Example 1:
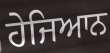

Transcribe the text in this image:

ਹੇਜਿਆਨ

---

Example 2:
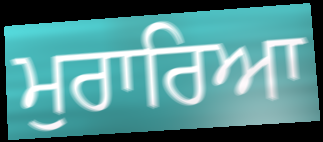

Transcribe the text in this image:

ਮੁਰਾਰਿਆ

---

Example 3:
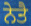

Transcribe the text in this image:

ਨੇਤੈ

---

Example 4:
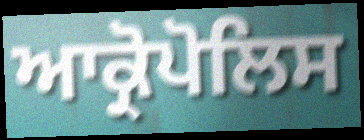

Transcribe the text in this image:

ਆਕ੍ਰੋਪੋਲਿਸ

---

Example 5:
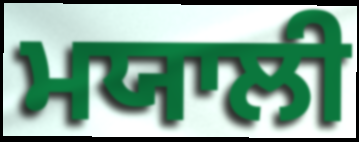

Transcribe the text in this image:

ਮਯਾਲੀ